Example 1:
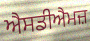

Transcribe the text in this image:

ਐਸਡੀਐਮਜ਼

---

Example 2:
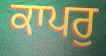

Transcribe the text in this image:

ਕਾਪਰੁ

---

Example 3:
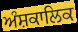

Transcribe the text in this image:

ਅੰਸ਼ਕਾਲਿਕ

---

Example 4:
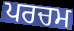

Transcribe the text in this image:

ਪਰਚਮ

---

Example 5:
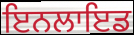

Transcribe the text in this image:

ਇਨਲਾਇਡ